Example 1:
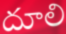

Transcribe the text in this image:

దూలి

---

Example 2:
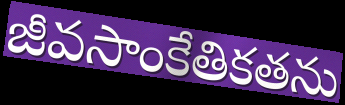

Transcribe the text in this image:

జీవసాంకేతికతను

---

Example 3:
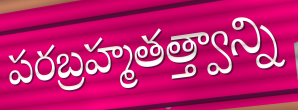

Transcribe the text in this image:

పరబ్రహ్మతత్త్వాన్ని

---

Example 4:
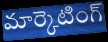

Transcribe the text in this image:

మార్కెటింగ్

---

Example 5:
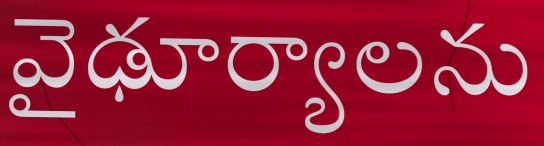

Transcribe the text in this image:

వైఢూర్యాలను